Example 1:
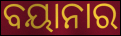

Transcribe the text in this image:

ବୟାନାର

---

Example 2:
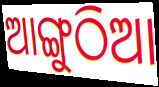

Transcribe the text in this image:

ଆଙ୍ଗୁଠିଆ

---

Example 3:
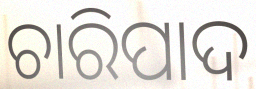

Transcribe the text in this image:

ଚାରିପାଦ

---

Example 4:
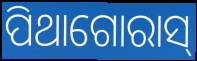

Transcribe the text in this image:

ପିଥାଗୋରାସ୍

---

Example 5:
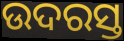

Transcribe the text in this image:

ଉଦରସ୍ତ